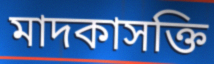
মাদকাসক্তি